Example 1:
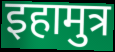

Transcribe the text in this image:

इहामुत्र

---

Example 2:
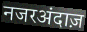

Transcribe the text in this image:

नजरअंदाज़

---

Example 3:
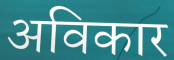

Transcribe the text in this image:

अविकार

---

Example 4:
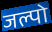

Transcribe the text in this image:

जल्पो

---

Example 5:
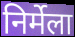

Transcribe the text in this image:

निर्मेला